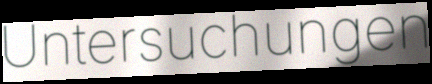
Untersuchungen